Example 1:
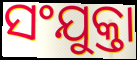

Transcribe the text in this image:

ସଂଯୁକ୍ତା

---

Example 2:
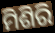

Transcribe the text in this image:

ମିଶିରି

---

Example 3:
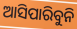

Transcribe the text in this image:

ଆସିପାରିବୁନି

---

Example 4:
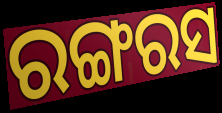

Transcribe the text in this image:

ରଙ୍ଗରସ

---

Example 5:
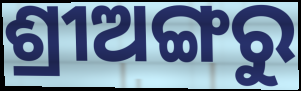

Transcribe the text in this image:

ଶ୍ରୀଅଙ୍ଗରୁ